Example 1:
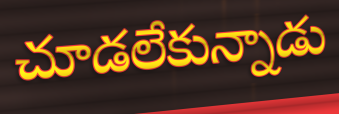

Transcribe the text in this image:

చూడలేకున్నాడు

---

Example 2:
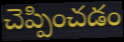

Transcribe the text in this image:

చెప్పించడం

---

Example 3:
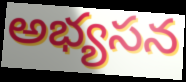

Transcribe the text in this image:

అభ్యసన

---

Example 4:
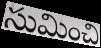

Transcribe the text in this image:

సుమించి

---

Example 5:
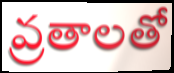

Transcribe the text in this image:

వ్రతాలతో